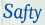
Safty